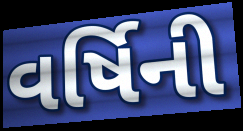
વર્ષિની